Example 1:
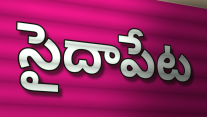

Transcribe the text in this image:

సైదాపేట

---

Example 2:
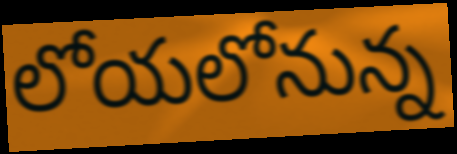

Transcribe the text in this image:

లోయలోనున్న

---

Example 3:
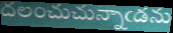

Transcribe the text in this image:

దలంచుచున్నాఁడను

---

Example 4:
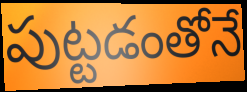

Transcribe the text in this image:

పుట్టడంతోనే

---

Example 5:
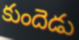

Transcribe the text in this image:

కుందెడు